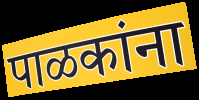
पाळकांना